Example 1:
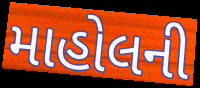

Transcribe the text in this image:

માહોલની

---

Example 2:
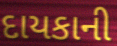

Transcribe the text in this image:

દાયકાની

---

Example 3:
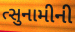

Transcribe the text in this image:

ત્સુનામીની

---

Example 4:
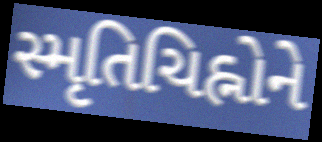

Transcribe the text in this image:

સ્મૃતિચિહ્નોને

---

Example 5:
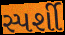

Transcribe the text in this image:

સ્પર્શી